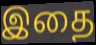
இதை